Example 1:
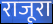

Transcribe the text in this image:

राजूरा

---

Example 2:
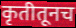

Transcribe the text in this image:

कृतीतूनच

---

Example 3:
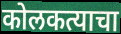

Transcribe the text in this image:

कोलकत्याचा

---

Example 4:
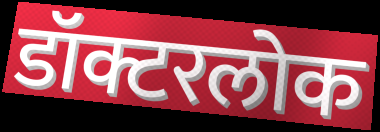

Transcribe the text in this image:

डॉक्टरलोक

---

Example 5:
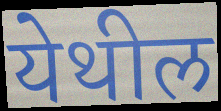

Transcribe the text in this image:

येथील